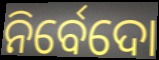
ନିର୍ବେଦୋ